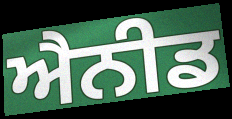
ਐਨੀਡ